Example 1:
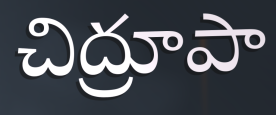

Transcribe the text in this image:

చిద్రూపా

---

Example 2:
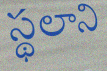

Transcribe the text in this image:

స్థలాని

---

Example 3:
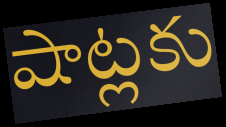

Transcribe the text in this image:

షాట్లకు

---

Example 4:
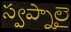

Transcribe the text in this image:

స్వప్నాలై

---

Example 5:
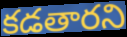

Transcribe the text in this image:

కడతారని